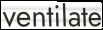
ventilate